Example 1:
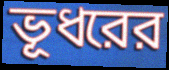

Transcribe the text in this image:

ভূধরের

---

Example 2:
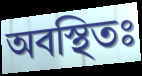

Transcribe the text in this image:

অবস্থিতঃ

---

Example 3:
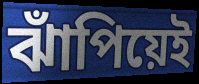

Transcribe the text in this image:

ঝাঁপিয়েই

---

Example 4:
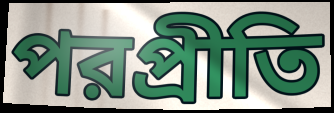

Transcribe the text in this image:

পরপ্রীতি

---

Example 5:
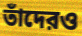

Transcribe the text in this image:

তাঁদেরও